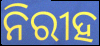
ନିରୀହ